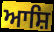
ਆਸ਼ਿ